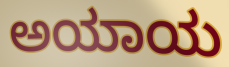
ಅಯಾಯ